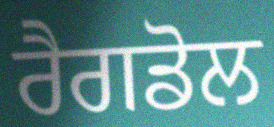
ਰੈਗਡੋਲ